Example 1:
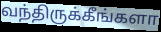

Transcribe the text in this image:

வந்திருக்கீங்களா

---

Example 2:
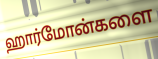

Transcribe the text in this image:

ஹார்மோன்களை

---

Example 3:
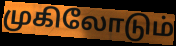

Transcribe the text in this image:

முகிலோடும்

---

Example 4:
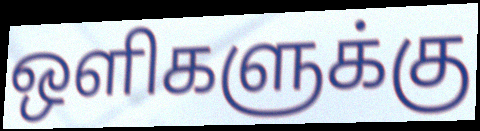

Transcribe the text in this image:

ஒளிகளுக்கு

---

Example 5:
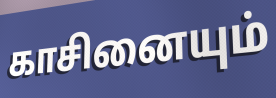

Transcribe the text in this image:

காசினையும்